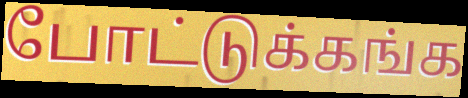
போட்டுக்கங்க